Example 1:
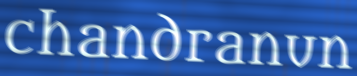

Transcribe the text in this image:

chandranun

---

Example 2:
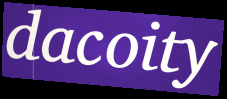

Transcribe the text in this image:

dacoity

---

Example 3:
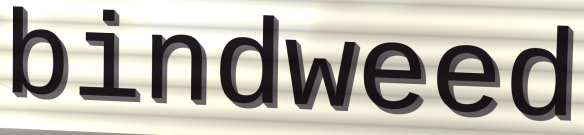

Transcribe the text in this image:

bindweed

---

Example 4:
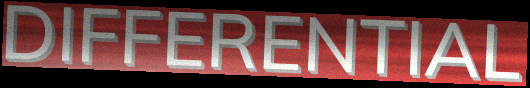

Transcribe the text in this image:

DIFFERENTIAL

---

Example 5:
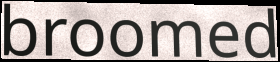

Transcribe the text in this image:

broomed